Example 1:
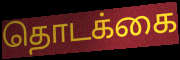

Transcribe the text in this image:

தொடக்கை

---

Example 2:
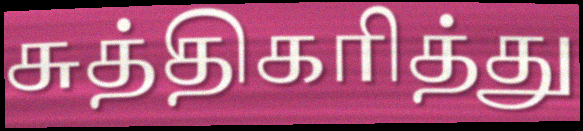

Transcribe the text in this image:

சுத்திகரித்து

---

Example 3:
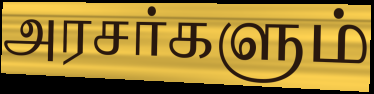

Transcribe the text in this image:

அரசர்களும்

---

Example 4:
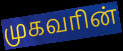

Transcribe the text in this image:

முகவரின்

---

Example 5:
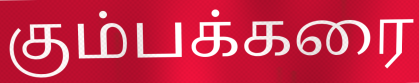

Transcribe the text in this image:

கும்பக்கரை